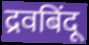
द्रवबिंदू